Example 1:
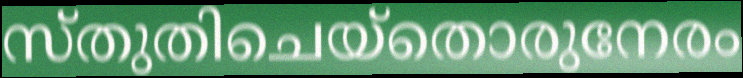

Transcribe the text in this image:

സ്തുതിചെയ്തൊരുനേരം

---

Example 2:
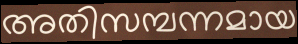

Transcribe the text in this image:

അതിസമ്പന്നമായ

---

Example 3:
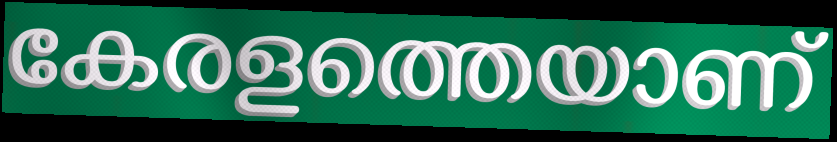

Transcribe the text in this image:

കേരളത്തെയാണ്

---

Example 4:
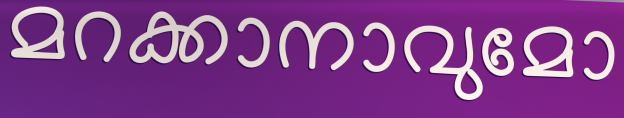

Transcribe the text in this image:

മറക്കാനാവുമോ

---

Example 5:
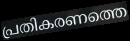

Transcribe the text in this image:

പ്രതികരണത്തെ